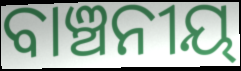
ବାଞ୍ଚନୀୟ